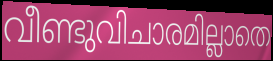
വീണ്ടുവിചാരമില്ലാതെ